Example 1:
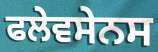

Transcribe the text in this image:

ਫਲੇਵਸੇਨਸ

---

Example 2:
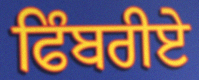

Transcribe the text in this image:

ਫਿੰਬਰੀਏ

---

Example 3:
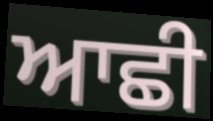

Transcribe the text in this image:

ਆਛੀ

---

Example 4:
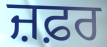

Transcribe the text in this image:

ਜ਼ਫ਼ਰ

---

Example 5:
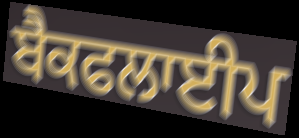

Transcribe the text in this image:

ਬੈਕਫਲਾਈਪ